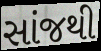
સાંજથી